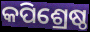
କପିଶ୍ରେଷ୍ଠ